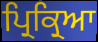
ਪ੍ਰਿਕ੍ਰਿਆ